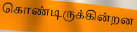
கொண்டிருக்கின்றன